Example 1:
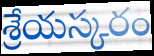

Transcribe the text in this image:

శ్రేయస్కరం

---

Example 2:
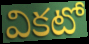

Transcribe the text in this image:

వికటో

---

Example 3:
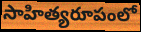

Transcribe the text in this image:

సాహిత్యరూపంలో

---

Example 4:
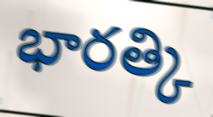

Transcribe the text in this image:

భారత్కి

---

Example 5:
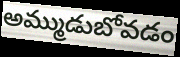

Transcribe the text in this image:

అమ్ముడుబోవడం